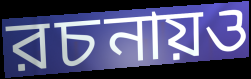
রচনায়ও